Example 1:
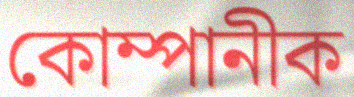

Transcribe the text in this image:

কোম্পানীক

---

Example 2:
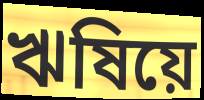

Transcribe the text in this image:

ঋষিয়ে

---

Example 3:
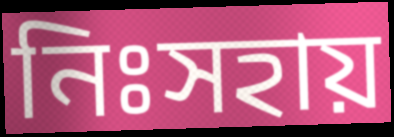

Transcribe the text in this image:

নিঃসহায়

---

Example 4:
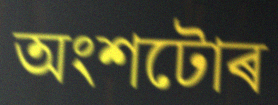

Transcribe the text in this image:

অংশটোৰ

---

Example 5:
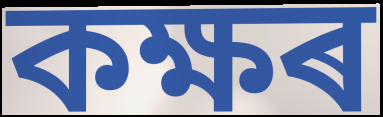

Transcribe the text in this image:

কক্ষৰ